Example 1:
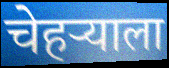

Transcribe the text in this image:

चेहऱ्याला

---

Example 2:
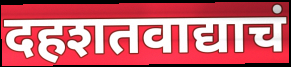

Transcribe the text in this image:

दहशतवाद्याचं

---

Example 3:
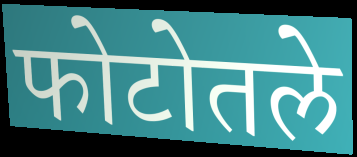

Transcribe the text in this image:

फोटोतले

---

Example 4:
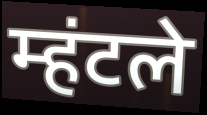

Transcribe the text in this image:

म्हंटले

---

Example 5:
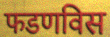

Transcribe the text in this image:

फडणविस